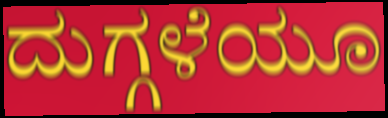
ದುಗ್ಗಳೆಯೂ